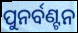
ପୁନର୍ବଣ୍ଟନ